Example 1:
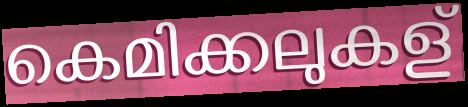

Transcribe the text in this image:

കെമിക്കലുകള്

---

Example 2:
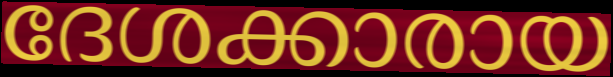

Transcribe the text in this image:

ദേശക്കാരായ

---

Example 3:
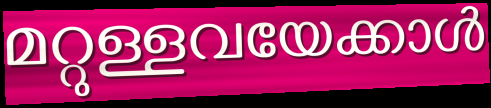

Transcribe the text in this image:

മറ്റുള്ളവയേക്കാൾ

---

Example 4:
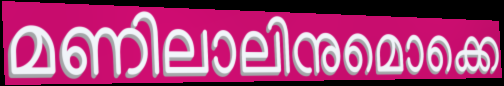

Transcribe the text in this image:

മണിലാലിനുമൊക്കെ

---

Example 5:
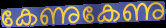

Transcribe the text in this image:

കേണുകേണു